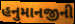
હનુમાનજીની